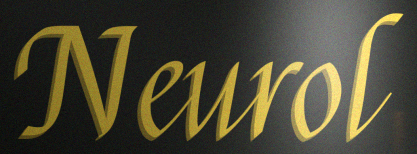
Neurol